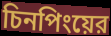
চিনপিংয়ের